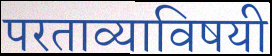
परताव्याविषयी